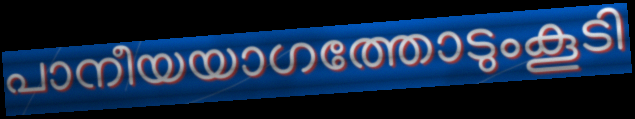
പാനീയയാഗത്തോടുംകൂടി